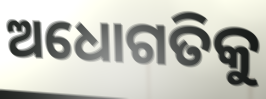
ଅଧୋଗତିକୁ